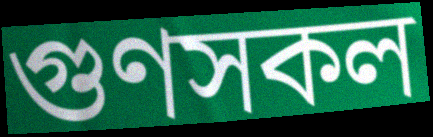
গুণসকল